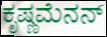
ಕೃಷ್ಣಮೆನನ್